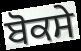
ਬੋਕਸੇ